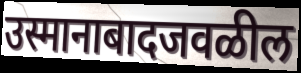
उस्मानाबादजवळील